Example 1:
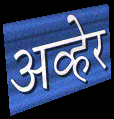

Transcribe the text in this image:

अव्हेर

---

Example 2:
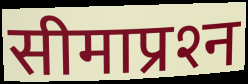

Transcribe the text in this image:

सीमाप्रश्न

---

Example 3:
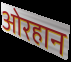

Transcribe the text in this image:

ओरहान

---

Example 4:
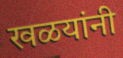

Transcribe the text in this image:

खळयांनी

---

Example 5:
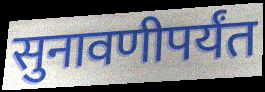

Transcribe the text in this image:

सुनावणीपर्यंत